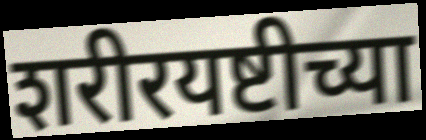
शरीरयष्टीच्या